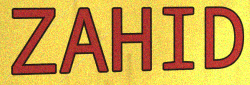
ZAHID